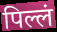
पिल्लं